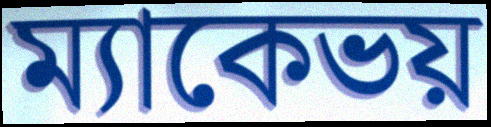
ম্যাকেভয়